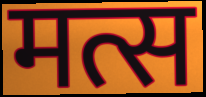
मत्स